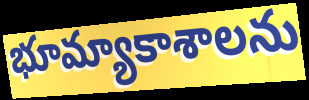
భూమ్యాకాశాలను